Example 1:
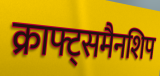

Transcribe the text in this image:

क्राफ्ट्समैनशिप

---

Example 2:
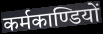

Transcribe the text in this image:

कर्मकाण्डियों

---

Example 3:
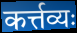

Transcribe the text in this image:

कर्त्तव्यः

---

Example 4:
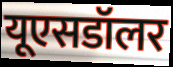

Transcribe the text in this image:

यूएसडॉलर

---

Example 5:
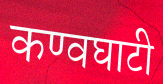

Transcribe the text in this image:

कण्वघाटी